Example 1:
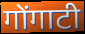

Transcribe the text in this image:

गोंगाटी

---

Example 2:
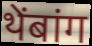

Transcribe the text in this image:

थेंबांग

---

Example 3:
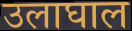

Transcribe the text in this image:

उलाघाल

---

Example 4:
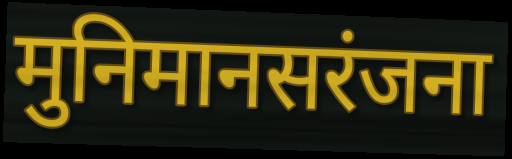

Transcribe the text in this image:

मुनिमानसरंजना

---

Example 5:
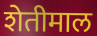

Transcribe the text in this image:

शेतीमाल